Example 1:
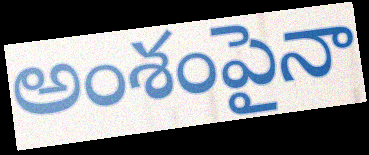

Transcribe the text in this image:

అంశంపైనా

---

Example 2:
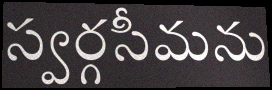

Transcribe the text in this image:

స్వర్గసీమను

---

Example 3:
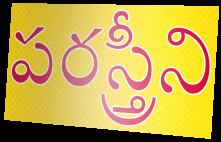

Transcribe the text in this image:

పరస్త్రీని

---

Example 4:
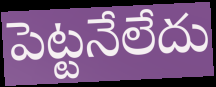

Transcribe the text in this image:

పెట్టనేలేదు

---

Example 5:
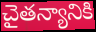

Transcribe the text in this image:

చైతన్యానికి